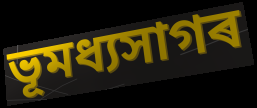
ভূমধ্যসাগৰ